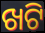
ଖଟି